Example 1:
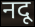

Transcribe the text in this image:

नदू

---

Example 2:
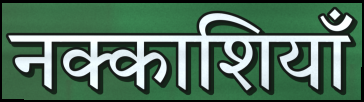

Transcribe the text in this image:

नक्काशियाँ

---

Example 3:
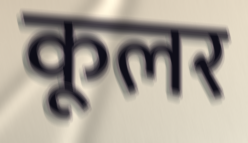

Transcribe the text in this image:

कूलर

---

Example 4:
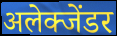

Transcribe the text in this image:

अलेक्जेंडर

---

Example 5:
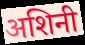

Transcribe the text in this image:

अशिनी